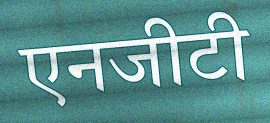
एनजीटी